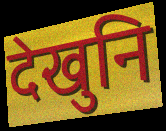
देखुनि